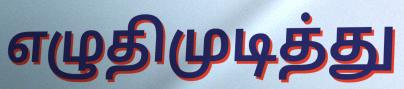
எழுதிமுடித்து